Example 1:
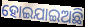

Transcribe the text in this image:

ହୋଇଯାଇଅଛି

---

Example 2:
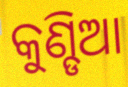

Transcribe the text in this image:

କୁଣ୍ଡିଆ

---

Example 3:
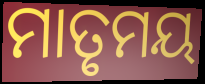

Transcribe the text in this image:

ମାତୃମୟ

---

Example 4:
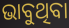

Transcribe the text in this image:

ଭାବୁଥିବା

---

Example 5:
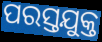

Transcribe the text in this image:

ପରସ୍ତଯୁକ୍ତ